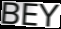
BEY